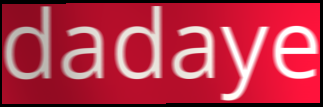
dadaye